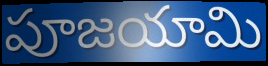
పూజయామి